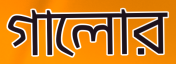
গালোর